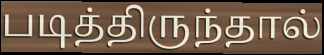
படித்திருந்தால்